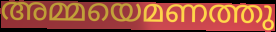
അമ്മയെമണത്തു